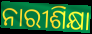
ନାରୀଶିକ୍ଷା